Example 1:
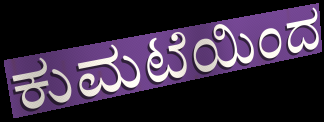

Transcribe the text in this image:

ಕುಮಟೆಯಿಂದ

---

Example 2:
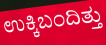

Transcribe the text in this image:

ಉಕ್ಕಿಬಂದಿತ್ತು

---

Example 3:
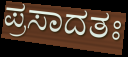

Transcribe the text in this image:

ಪ್ರಸಾದತಃ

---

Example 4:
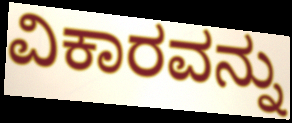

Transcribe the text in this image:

ವಿಕಾರವನ್ನು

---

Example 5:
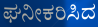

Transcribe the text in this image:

ಘನೀಕರಿಸಿದ